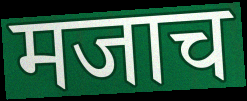
मजाच